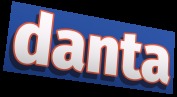
danta